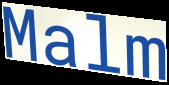
Malm